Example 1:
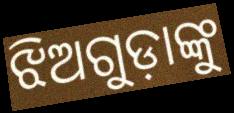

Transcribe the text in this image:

ଝିଅଗୁଡ଼ାଙ୍କୁ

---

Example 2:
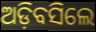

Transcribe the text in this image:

ଅଡ଼ିବସିଲେ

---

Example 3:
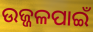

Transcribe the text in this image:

ଉଜ୍ଜଳପାଇଁ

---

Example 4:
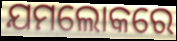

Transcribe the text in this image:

ଯମଲୋକରେ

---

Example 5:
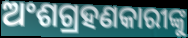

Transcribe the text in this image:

ଅଂଶଗ୍ରହଣକାରୀଙ୍କୁ